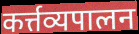
कर्त्तव्यपालन